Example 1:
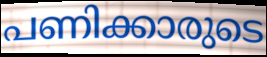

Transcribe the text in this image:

പണിക്കാരുടെ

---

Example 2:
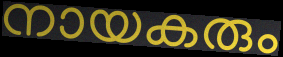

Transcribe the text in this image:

നായകരും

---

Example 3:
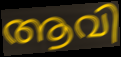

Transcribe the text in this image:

ആവി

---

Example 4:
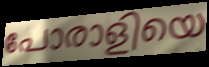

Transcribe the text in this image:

പോരാളിയെ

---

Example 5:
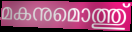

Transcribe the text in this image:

മകനുമൊത്തു്